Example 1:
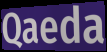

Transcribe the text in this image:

Qaeda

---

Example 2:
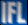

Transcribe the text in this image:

IFL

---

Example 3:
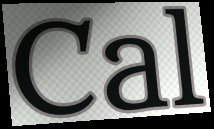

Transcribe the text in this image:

Cal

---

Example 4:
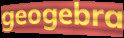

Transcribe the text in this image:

geogebra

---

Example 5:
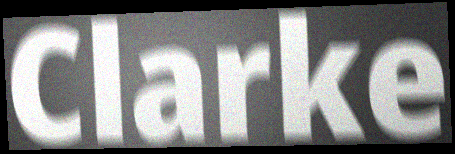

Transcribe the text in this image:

Clarke